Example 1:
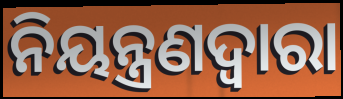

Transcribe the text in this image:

ନିୟନ୍ତ୍ରଣଦ୍ବାରା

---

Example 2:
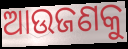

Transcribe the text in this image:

ଆଉଜଣକୁ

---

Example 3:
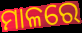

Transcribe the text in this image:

ମାଳରେ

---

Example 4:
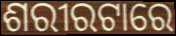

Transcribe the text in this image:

ଶରୀରଟାରେ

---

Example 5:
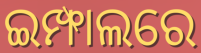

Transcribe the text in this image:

ଇମ୍ଫାଲରେ